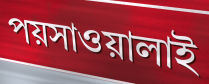
পয়সাওয়ালাই